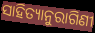
ସାହିତ୍ୟାନୁରାଗିଣୀ